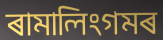
ৰামালিংগমৰ